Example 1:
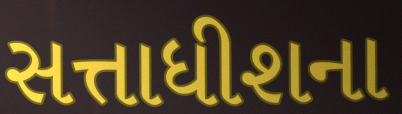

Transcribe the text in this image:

સત્તાધીશના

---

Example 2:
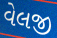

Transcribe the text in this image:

વેલજી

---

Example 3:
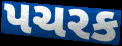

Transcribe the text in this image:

પચરક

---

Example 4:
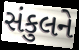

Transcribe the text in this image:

સંકુલને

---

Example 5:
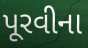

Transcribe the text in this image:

પૂરવીના